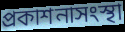
প্রকাশনাসংস্থা